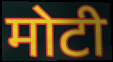
मोटी